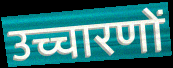
उच्चारणों